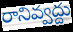
రానివ్వద్దు